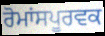
ਰੋਮਾਂਸਪੂਰਵਕ